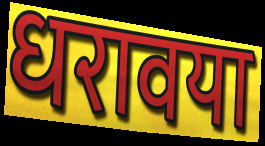
धरावया